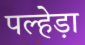
पल्हेड़ा